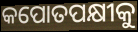
କପୋତପକ୍ଷୀକୁ